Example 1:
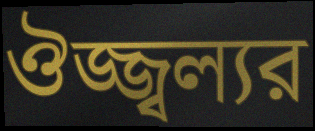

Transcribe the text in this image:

ঔজ্জ্বল্যর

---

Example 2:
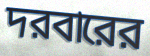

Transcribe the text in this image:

দরবারের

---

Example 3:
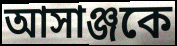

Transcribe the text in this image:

আসাঞ্জকে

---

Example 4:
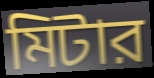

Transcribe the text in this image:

মিটার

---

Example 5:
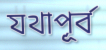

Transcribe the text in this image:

যথাপূর্ব